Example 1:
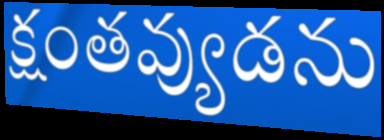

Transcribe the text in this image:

క్షంతవ్యుడను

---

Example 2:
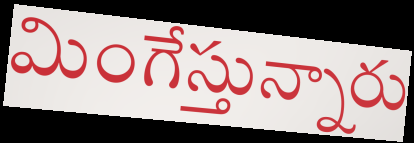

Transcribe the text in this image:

మింగేస్తున్నారు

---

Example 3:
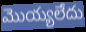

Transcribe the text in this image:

మొయ్యలేదు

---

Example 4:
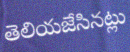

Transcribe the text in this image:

తెలియజేసినట్లు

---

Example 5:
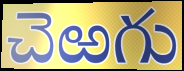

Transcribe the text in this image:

చెఱగు